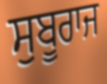
ਸੁਬੂਰਾਜ